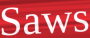
Saws